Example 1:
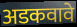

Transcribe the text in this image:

अडकवावे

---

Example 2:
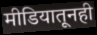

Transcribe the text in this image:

मीडियातूनही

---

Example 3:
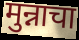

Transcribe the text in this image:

मुन्नाचा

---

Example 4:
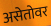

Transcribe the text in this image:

असेतोवर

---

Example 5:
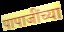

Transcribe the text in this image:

पापाजींच्या